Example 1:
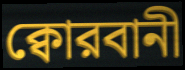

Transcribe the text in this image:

ক্বোরবানী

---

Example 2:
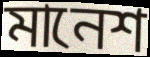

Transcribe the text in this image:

মানেশ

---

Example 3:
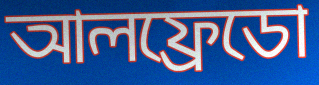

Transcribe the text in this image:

আলফ্রেডো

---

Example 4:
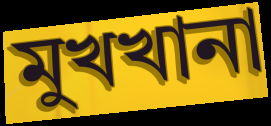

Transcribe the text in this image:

মুখখানা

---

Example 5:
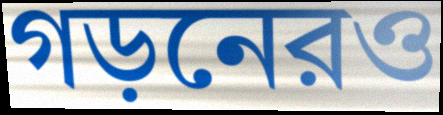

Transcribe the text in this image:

গড়নেরও